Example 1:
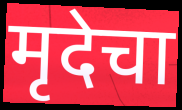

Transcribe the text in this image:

मृदेचा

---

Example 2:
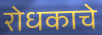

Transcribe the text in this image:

रोधकाचे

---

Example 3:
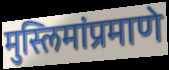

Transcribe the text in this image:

मुस्लिमांप्रमाणे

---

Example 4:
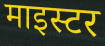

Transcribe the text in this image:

माइस्टर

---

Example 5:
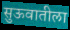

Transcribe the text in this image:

सुऊवातीला